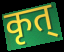
कृत्